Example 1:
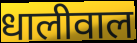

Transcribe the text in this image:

धालीवाल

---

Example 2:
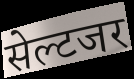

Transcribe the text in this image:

सेल्टजर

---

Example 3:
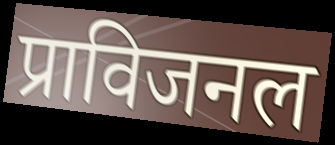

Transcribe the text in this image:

प्राविजनल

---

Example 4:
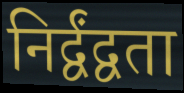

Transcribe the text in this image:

निर्द्वंद्वता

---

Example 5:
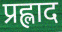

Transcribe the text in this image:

प्रह्लाद